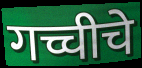
गच्चीचे